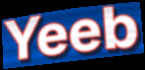
Yeeb